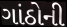
ગાંઠોની